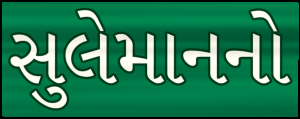
સુલેમાનનો